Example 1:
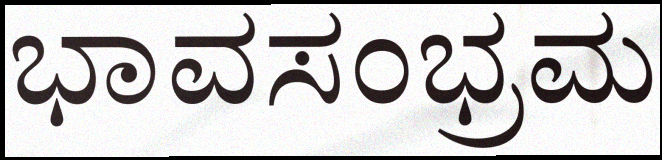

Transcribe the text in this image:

ಭಾವಸಂಭ್ರಮ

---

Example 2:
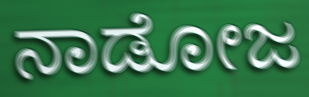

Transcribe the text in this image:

ನಾಡೋಜ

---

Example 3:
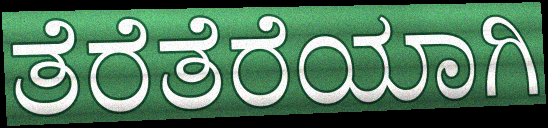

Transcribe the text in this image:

ತೆರೆತೆರೆಯಾಗಿ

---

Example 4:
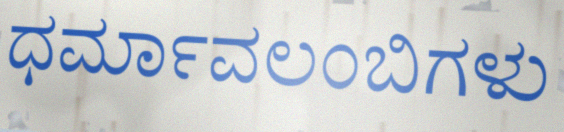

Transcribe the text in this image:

ಧರ್ಮಾವಲಂಬಿಗಳು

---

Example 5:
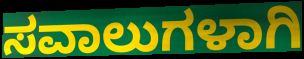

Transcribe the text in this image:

ಸವಾಲುಗಳಾಗಿ